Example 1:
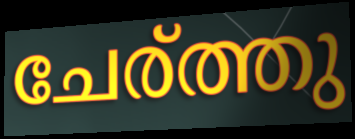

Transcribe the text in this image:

ചേര്ത്തു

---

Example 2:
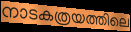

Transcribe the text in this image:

നാടകത്രയത്തിലെ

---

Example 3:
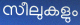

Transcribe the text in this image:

സീലുകളും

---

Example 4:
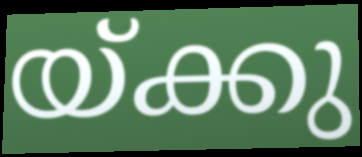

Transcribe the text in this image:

യ്ക്കു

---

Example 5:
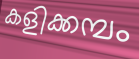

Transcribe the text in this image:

കളിക്കമ്പം